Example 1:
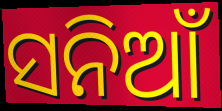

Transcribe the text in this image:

ସନିଆଁ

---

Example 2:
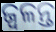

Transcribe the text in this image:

ଜ୍ଵଳନ୍ତ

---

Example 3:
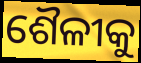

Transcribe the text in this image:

ଶୈଳୀକୁ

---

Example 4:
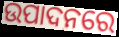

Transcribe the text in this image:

ଉପାଦନରେ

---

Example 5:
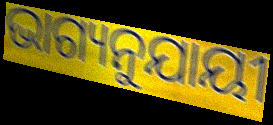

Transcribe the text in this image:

ଭାଗ୍ୟନୁଯାୟୀ